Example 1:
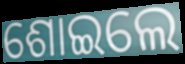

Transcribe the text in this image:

ଶୋଇଲେ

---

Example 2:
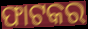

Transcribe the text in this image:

ଫାଟକର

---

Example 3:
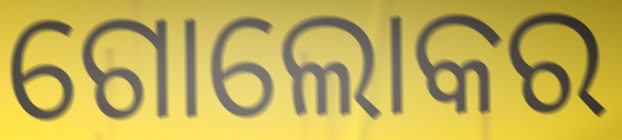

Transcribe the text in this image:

ଗୋଲୋକର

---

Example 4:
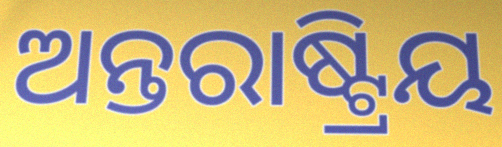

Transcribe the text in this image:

ଅନ୍ତରାଷ୍ଟ୍ରିୟ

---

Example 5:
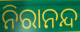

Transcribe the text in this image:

ନିରାନନ୍ଦ